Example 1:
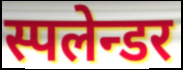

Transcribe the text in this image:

स्पलेन्डर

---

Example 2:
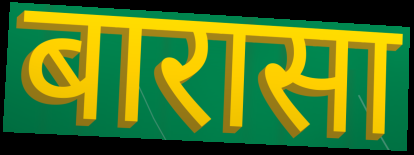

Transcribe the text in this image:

बारासा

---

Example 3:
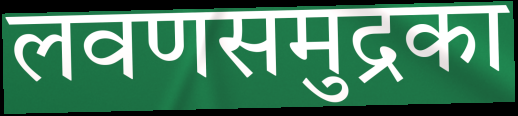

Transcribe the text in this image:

लवणसमुद्रका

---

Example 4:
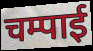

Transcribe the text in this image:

चम्‍पाई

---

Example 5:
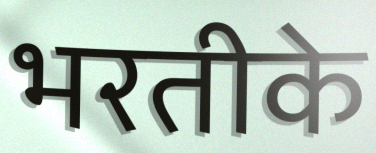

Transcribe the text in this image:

भरतीके